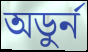
অডুর্ন